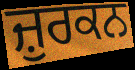
ਜ਼ੁਰਕਨ